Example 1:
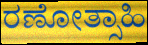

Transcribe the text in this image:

ರಣೋತ್ಸಾಹಿ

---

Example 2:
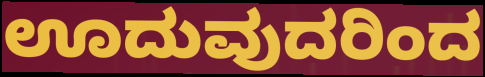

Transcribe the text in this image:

ಊದುವುದರಿಂದ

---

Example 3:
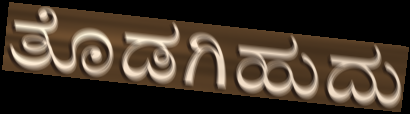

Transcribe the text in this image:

ತೊಡಗಿಹುದು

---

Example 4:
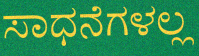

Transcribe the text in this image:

ಸಾಧನೆಗಳಲ್ಲ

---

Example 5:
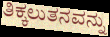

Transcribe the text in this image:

ತಿಕ್ಕಲುತನವನ್ನು